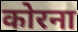
कोरना